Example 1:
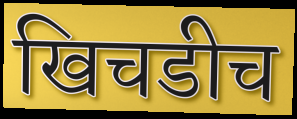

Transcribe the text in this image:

खिचडीच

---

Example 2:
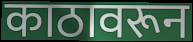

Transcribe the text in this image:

काठावरून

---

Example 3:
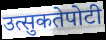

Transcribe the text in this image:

उत्सुकतेपोटी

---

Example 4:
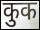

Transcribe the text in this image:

कुक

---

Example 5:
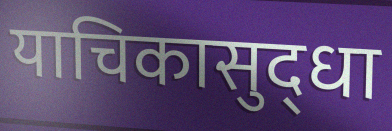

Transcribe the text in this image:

याचिकासुद्धा